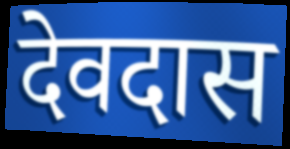
देवदास